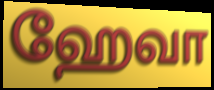
ஹேவா